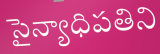
సైన్యాధిపతిని